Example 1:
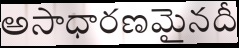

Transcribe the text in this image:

అసాధారణమైనదీ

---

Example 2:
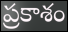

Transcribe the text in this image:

ప్రకాశం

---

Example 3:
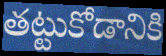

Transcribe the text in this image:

తట్టుకోడానికి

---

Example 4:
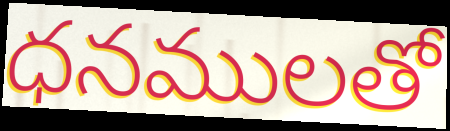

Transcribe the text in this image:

ధనములతో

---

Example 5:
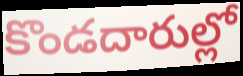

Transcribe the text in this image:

కొండదారుల్లో